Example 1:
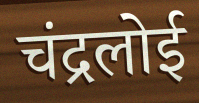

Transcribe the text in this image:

चंद्रलोई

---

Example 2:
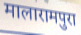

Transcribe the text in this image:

मालारामपुरा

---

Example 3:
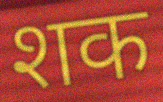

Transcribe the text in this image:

शक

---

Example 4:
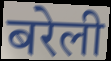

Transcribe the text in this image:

बरेली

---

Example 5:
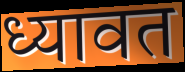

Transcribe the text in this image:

ध्यावत